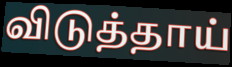
விடுத்தாய்